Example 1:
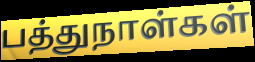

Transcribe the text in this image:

பத்துநாள்கள்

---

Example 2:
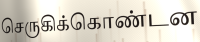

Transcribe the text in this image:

செருகிக்கொண்டன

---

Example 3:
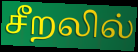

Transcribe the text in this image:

சீறலில்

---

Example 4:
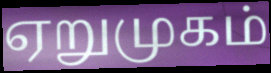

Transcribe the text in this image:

ஏறுமுகம்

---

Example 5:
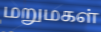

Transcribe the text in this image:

மறுமகள்